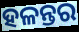
ହଳନ୍ତର